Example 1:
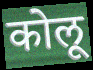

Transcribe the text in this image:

कोलू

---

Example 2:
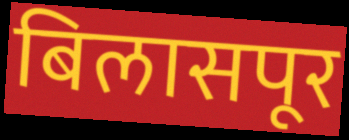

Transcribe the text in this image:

बिलासपूर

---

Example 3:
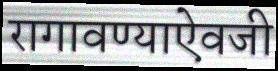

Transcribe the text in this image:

रागावण्याऐवजी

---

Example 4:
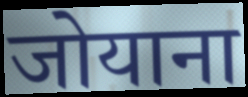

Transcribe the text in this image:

जोयाना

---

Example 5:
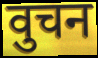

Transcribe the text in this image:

वुचन